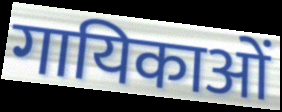
गायिकाओं